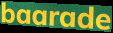
baarade